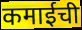
कमाईची